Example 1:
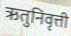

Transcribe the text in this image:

ऋतुनिवृत्ती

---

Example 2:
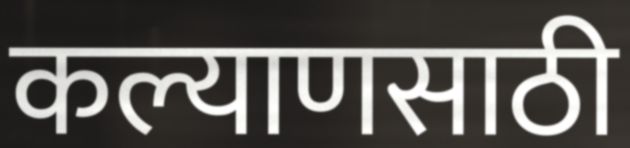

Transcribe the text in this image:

कल्याणसाठी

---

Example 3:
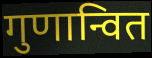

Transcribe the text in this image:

गुणान्वित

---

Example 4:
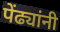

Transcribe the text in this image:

पेंढ्यांनी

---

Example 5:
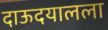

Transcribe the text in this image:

दाऊदयालला